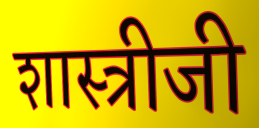
शास्त्रीजी